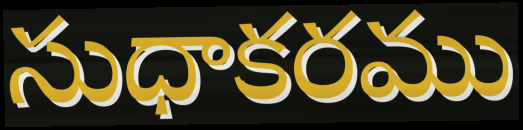
సుధాకరము